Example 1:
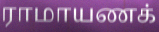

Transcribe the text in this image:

ராமாயணக்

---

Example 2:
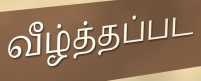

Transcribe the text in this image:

வீழ்த்தப்பட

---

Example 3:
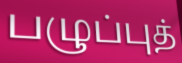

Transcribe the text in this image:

பழுப்புத்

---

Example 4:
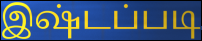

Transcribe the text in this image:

இஷ்டப்படி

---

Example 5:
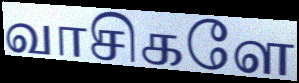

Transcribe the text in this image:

வாசிகளே